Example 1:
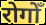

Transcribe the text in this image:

रोगोँ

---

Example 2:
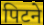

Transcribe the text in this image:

पिटने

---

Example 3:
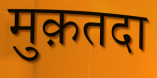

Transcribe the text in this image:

मुक़तदा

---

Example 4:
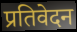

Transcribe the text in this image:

प्रतिवेदन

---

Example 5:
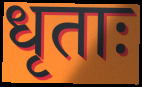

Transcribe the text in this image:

धृताः